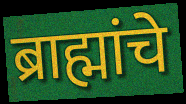
ब्राह्मांचे